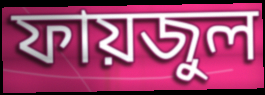
ফায়জুল